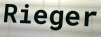
Rieger